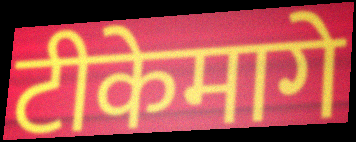
टीकेमागे